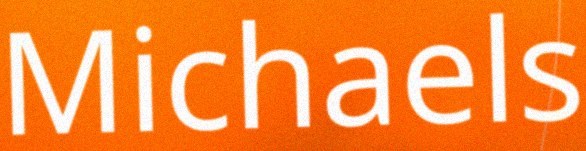
Michaels